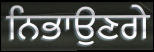
ਨਿਭਾਉਣਗੇ